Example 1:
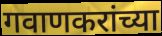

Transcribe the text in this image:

गवाणकरांच्या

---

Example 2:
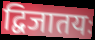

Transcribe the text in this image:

द्विजातयः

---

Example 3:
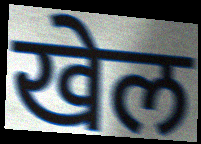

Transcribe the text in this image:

खेल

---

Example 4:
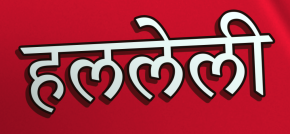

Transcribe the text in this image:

हललेली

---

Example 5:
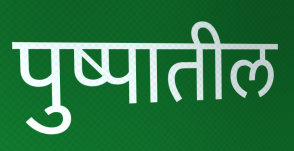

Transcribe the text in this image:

पुष्पातील